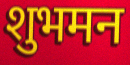
शुभमन